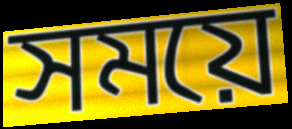
সময়ে